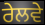
ਰੇਲਵੇ